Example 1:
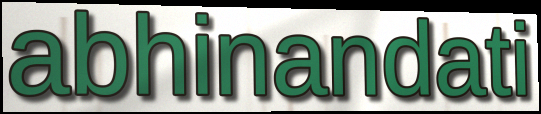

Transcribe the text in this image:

abhinandati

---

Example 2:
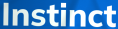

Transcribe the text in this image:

Instinct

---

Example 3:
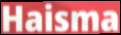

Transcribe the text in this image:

Haisma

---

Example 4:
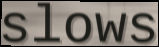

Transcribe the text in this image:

slows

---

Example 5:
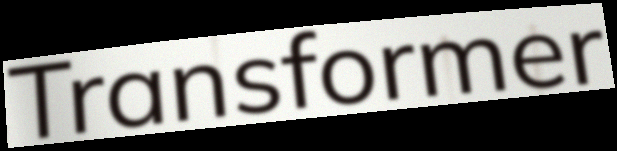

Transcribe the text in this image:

Transformer